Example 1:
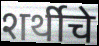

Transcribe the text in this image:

शर्थीचे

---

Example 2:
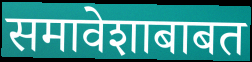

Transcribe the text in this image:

समावेशाबाबत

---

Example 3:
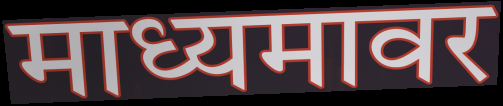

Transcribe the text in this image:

माध्यमावर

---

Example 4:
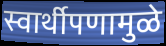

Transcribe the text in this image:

स्वार्थीपणामुळे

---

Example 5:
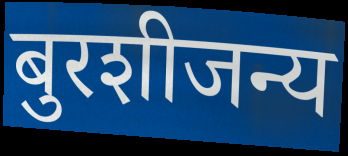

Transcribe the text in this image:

बुरशीजन्य